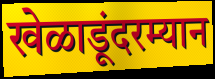
खेळाडूंदरम्यान